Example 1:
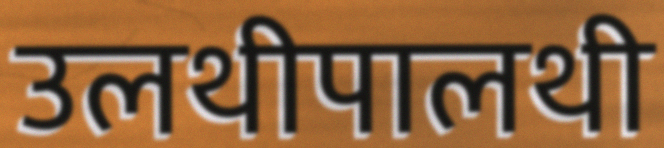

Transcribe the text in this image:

उलथीपालथी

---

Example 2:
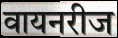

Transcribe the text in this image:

वायनरीज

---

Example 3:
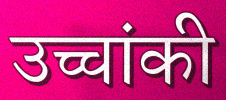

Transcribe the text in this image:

उच्चांकी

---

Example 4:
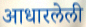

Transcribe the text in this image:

आधारलेली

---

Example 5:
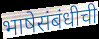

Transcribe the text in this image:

भाषेसंबंधीची